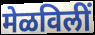
मेळविलीं